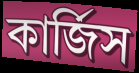
কার্জিস